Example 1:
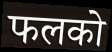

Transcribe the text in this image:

फलको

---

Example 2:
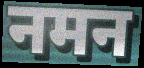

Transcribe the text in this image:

नमन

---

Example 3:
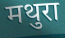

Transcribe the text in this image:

मथुरा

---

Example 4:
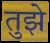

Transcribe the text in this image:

तुझे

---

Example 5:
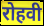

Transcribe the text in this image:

रोहवी